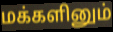
மக்களினும்